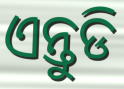
ଏନ୍ତୁଡି